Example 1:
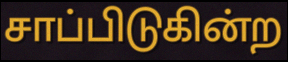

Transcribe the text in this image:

சாப்பிடுகின்ற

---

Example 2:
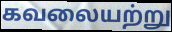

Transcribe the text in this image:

கவலையற்று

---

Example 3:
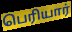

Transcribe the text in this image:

பெரியார்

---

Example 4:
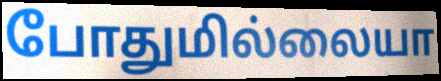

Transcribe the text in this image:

போதுமில்லையா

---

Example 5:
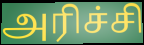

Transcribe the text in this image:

அரிச்சி